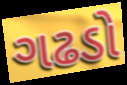
ગઢડો